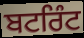
ਬਟਰਿੰਟ